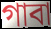
গাবা